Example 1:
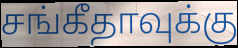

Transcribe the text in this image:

சங்கீதாவுக்கு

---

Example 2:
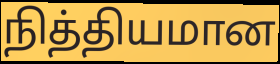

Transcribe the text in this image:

நித்தியமான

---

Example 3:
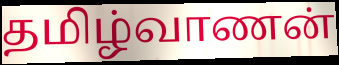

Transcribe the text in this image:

தமிழ்வாணன்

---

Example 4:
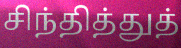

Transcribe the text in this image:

சிந்தித்துத்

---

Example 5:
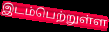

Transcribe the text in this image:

இடம்பெற்றுள்ள